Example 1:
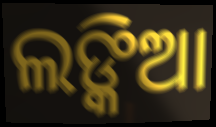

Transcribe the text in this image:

ଲଙ୍କିଆ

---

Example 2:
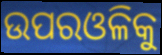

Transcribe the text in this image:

ଉପରଓଳିକୁ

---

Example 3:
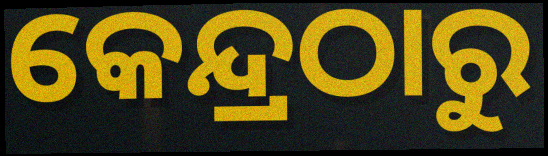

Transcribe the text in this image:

କେନ୍ଦ୍ରଠାରୁ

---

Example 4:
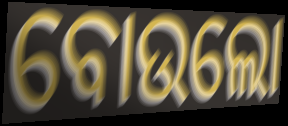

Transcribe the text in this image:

ବୋଉଲୋ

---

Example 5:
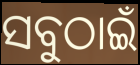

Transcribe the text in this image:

ସବୁଠାଇଁ